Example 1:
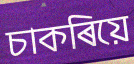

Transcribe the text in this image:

চাকৰিয়ে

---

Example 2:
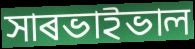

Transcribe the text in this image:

সাৰভাইভাল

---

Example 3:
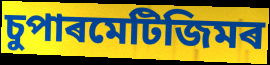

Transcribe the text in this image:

চুপাৰমেটিজিমৰ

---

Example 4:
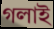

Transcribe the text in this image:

গলাই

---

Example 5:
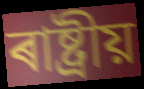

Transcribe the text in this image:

ৰাষ্ট্ৰীয়